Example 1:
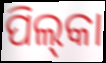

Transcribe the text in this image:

ପିଲ୍‌କା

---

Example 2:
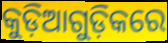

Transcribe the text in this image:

କୁଡ଼ିଆଗୁଡ଼ିକରେ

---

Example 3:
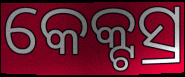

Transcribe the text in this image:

କେକ୍ଟସ୍ର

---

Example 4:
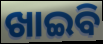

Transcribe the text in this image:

ଖାଇବି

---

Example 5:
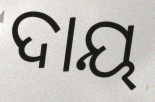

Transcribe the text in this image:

ଦାୟ